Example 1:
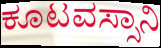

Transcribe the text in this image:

ಕೂಟವಸ್ಸಾನಿ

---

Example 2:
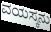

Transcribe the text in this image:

ವಯಸ್ಕನು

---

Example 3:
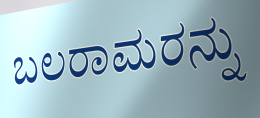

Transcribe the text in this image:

ಬಲರಾಮರನ್ನು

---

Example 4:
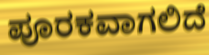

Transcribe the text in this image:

ಪೂರಕವಾಗಲಿದೆ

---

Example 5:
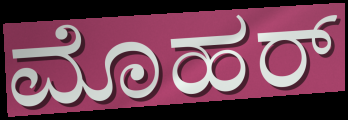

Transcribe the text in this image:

ಮೊಹರ್